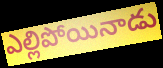
ఎల్లిపోయినాడు